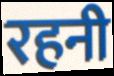
रहनी